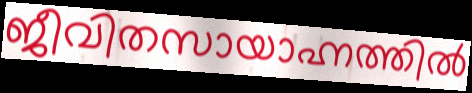
ജീവിതസായാഹ്നത്തിൽ